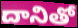
దానితో